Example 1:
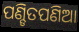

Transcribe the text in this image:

ପଣ୍ଡିତପଣିଆ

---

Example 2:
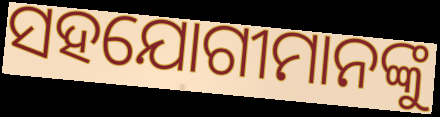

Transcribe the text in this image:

ସହଯୋଗୀମାନଙ୍କୁ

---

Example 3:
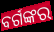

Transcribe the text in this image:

ବର୍ଗଙ୍କର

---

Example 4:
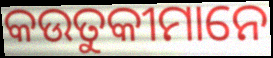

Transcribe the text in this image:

କଉତୁକୀମାନେ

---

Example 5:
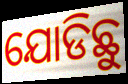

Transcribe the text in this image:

ଯୋଡିଛୁ